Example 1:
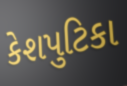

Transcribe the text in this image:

કેશપુટિકા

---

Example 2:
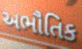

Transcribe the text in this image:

અભૌતિક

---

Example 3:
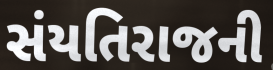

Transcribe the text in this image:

સંયતિરાજની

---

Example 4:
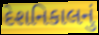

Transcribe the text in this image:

દેશનિકાલનું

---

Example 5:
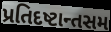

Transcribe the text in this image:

પ્રતિદષ્ટાન્તસમ